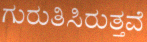
ಗುರುತಿಸಿರುತ್ತವೆ